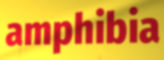
amphibia